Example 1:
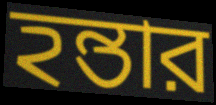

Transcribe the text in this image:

হন্তার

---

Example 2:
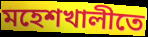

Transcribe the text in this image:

মহেশখালীতে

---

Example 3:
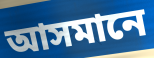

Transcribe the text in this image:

আসমানে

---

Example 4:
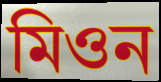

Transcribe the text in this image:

মিওন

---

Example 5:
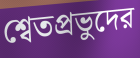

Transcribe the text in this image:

শ্বেতপ্রভুদের